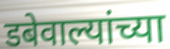
डबेवाल्यांच्या